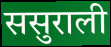
ससुराली